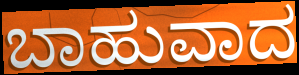
ಬಾಹುವಾದ